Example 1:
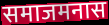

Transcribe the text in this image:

समाजमनास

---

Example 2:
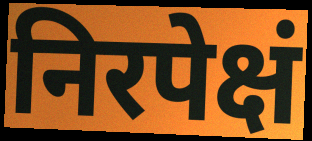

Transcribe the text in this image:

निरपेक्षं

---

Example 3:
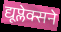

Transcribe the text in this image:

द्यूप्लेक्सने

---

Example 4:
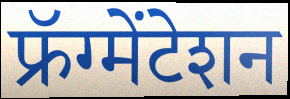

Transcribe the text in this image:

फ्रॅग्मेंटेशन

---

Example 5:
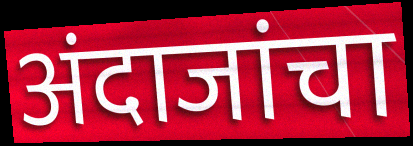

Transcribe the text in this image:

अंदाजांचा